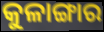
କୁଳାଙ୍ଗାର